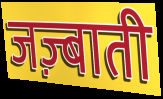
जज़्बाती